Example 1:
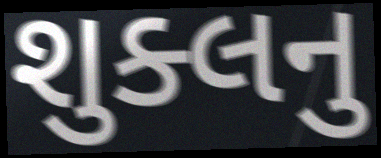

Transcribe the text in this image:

શુક્લનુ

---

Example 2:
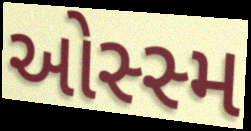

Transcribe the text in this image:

ઓસ્સ્મ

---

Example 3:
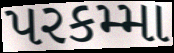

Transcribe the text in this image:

પરકમ્મા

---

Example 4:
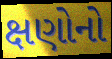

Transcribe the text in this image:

ક્ષણોનો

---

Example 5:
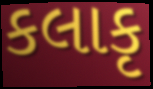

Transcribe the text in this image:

કલાકૃ